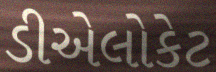
ડીએલોકેટ